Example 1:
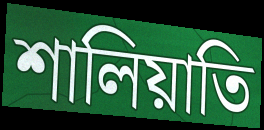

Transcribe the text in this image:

শালিয়াতি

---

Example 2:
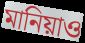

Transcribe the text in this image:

মানিয়াও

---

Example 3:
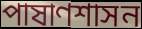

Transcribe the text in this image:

পাষাণশাসন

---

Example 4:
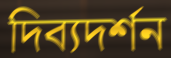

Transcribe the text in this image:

দিব্যদর্শন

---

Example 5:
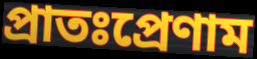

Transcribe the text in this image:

প্রাতঃপ্রেণাম